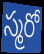
స్మరో